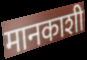
मानकाशी